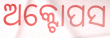
ଅକ୍ଟୋପସ